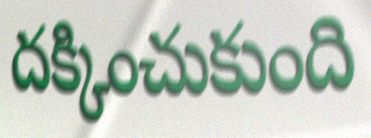
దక్కించుకుంది